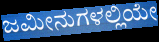
ಜಮೀನುಗಳಲ್ಲಿಯೇ